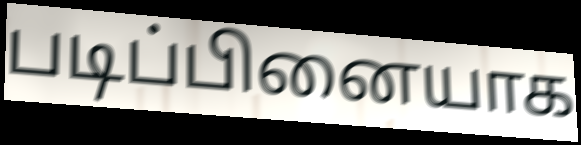
படிப்பினையாக